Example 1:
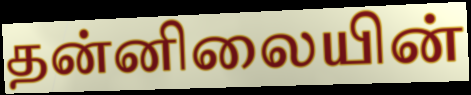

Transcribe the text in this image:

தன்னிலையின்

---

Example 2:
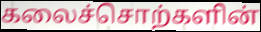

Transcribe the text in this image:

கலைச்சொற்களின்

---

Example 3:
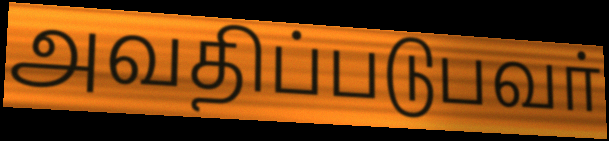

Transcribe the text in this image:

அவதிப்படுபவர்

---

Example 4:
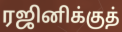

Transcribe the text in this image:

ரஜினிக்குத்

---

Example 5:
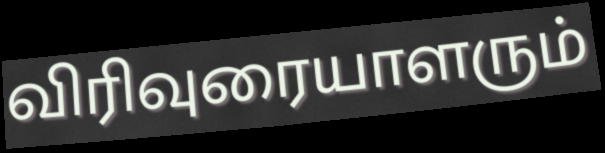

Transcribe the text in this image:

விரிவுரையாளரும்